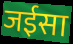
जईसा